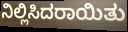
ನಿಲ್ಲಿಸಿದರಾಯಿತು